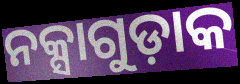
ନକ୍ସାଗୁଡ଼ାକ